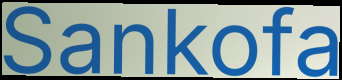
Sankofa